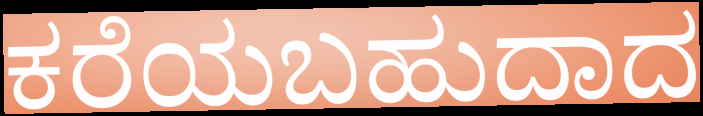
ಕರೆಯಬಹುದಾದ